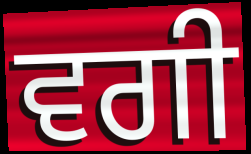
ਵਗੀ